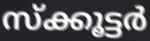
സ്ക്കൂട്ടർ